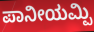
ಪಾನೀಯಮ್ಪಿ